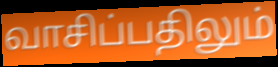
வாசிப்பதிலும்